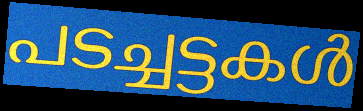
പടച്ചട്ടകൾ